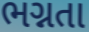
ભગ્નતા